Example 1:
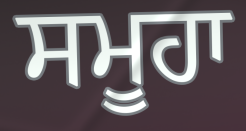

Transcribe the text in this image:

ਸਮੂਹਾ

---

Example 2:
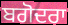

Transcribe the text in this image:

ਬਗੋਦਰਾ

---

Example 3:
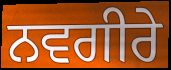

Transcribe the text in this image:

ਨਵਗੀਰੇ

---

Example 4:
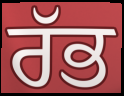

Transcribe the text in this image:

ਰੱਭ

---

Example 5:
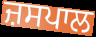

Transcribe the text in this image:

ਜ਼ਸਪਾਲ